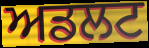
ਅਡਲਟ